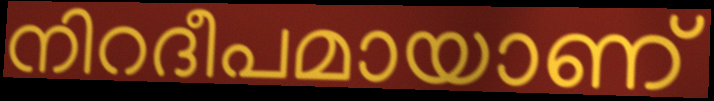
നിറദീപമായാണ്